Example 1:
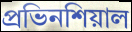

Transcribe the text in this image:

প্রভিনশিয়াল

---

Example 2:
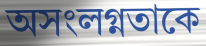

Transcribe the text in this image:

অসংলগ্নতাকে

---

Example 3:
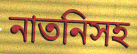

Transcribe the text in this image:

নাতনিসহ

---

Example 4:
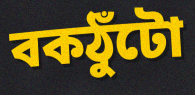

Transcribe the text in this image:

বকঠুঁটো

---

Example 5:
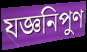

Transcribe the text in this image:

যজ্ঞনিপুণ